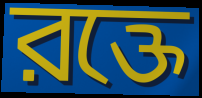
রক্তে